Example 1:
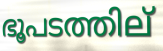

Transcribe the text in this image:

ഭൂപടത്തില്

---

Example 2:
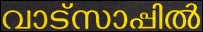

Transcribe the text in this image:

വാട്സാപ്പിൽ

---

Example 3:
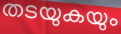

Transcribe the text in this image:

തടയുകയും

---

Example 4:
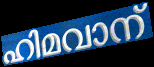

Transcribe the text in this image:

ഹിമവാന്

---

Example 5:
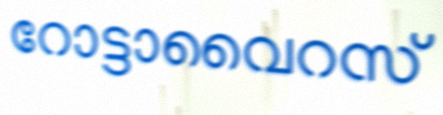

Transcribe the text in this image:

റോട്ടാവൈറസ്